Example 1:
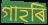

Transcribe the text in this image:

গাহৰি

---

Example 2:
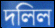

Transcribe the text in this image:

দলিল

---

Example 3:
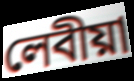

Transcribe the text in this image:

লেবীয়া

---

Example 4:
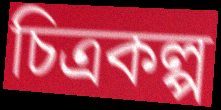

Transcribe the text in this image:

চিত্ৰকল্প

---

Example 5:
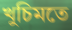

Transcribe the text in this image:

খুচিমতে